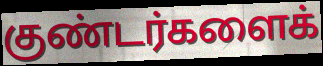
குண்டர்களைக்